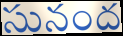
సునంద